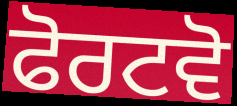
ਫੋਰਟਵੋ